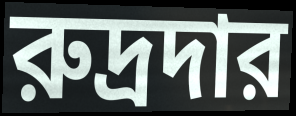
রুদ্রদার